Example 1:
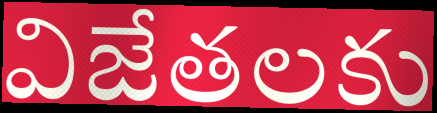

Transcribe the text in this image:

విజేతలకు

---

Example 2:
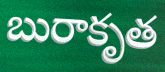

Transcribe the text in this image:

బురాకృత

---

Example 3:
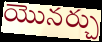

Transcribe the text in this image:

యొనర్చు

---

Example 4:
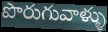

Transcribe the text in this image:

పొరుగువాళ్ళు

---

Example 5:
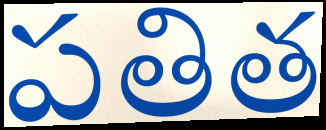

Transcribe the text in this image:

పతిత